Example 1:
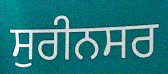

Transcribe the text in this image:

ਸੁਰੀਨਸਰ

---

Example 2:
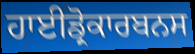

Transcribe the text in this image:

ਹਾਈਡ੍ਰੋਕਾਰਬਨਸ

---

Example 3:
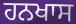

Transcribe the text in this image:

ਹਨਖਾਸ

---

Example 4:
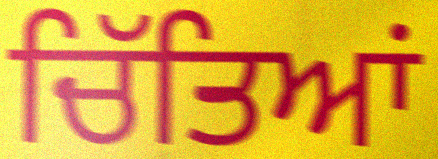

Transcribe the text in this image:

ਚਿੱਤਿਆਂ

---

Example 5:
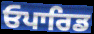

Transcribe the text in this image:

ਓਪਾਰਿਡ